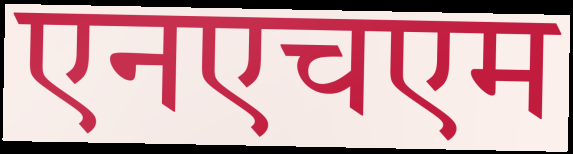
एनएचएम